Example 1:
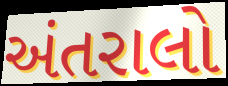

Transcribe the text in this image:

અંતરાલો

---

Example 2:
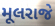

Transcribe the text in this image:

મૂલરાજે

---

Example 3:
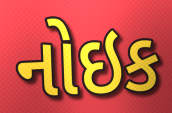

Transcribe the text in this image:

નોઇક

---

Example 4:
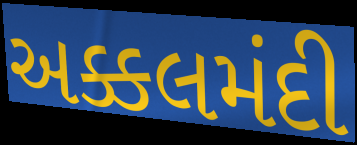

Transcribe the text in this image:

અક્કલમંદી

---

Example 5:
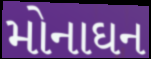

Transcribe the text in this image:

મોનાઘન